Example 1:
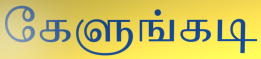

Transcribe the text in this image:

கேளுங்கடி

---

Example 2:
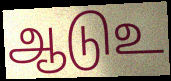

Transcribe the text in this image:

ஆடுஉ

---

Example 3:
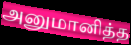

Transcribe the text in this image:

அனுமானித்த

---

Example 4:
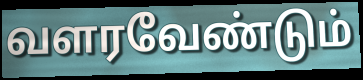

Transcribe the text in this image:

வளரவேண்டும்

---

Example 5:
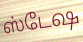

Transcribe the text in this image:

ஸ்டேஷ